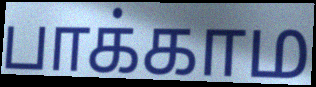
பாக்காம